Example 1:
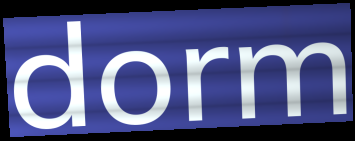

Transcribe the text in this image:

dorm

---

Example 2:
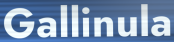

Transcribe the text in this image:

Gallinula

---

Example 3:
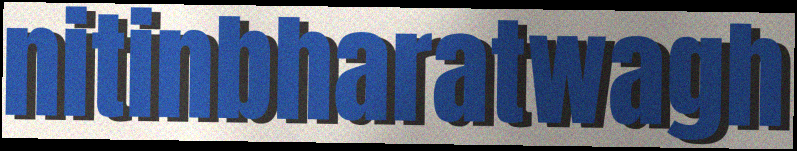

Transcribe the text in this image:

nitinbharatwagh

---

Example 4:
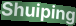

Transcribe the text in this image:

Shuiping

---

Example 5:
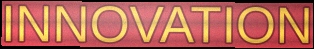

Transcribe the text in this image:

INNOVATION